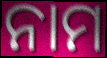
ନାମ